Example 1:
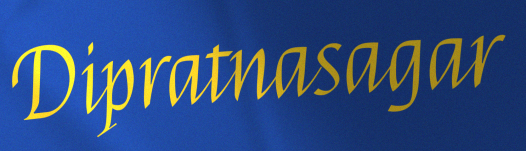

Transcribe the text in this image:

Dipratnasagar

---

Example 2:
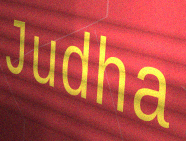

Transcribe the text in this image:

Judha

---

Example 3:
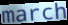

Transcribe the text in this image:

march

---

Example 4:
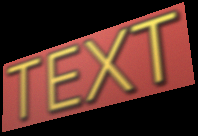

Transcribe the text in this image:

TEXT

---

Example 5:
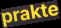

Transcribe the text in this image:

prakte